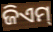
ଜିଏମ୍